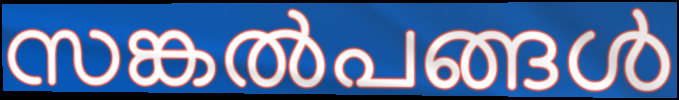
സങ്കൽപങ്ങൾ